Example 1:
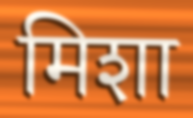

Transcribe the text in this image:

मिशा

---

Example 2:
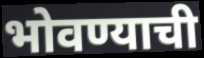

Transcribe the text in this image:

भोवण्याची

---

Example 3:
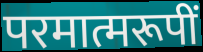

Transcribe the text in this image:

परमात्मरूपीं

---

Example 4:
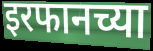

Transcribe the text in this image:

इरफानच्या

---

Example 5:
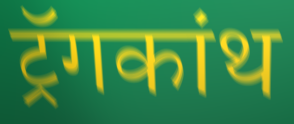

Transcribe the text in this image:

ट्रॅगकांथ